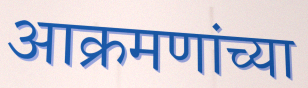
आक्रमणांच्या